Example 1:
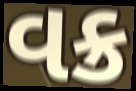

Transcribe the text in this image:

વક્ર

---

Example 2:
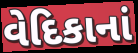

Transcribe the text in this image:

વેદિકાનાં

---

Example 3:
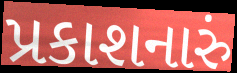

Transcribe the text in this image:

પ્રકાશનારું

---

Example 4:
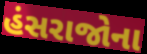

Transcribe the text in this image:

હંસરાજોના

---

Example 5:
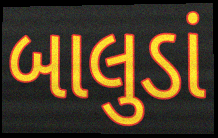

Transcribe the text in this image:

બાલુડાં